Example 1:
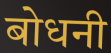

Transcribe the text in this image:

बोधनी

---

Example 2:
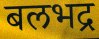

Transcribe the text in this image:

बलभद्र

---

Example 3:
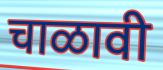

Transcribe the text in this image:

चाळावी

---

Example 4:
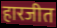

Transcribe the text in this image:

हारजीत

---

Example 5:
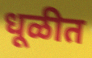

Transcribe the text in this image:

धूळीत